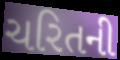
ચરિતની